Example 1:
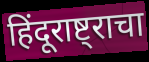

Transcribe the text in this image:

हिंदूराष्ट्राचा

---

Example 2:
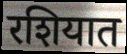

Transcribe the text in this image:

रशियात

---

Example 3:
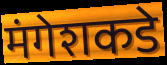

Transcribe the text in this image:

मंगेशकडे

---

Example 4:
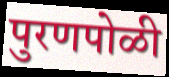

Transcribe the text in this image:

पुरणपोळी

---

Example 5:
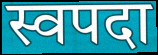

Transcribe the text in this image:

स्वपदा